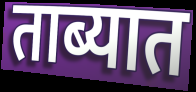
ताब्यात